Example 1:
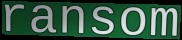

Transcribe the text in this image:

ransom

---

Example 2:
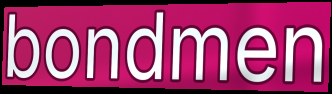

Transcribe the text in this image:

bondmen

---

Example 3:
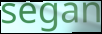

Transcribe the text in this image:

segan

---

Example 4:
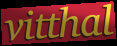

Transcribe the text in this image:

vitthal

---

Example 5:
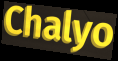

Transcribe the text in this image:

Chalyo